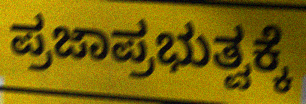
ಪ್ರಜಾಪ್ರಭುತ್ವಕ್ಕೆ